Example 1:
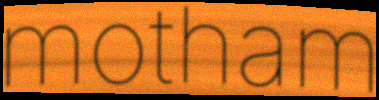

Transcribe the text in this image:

motham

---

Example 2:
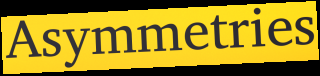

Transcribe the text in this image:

Asymmetries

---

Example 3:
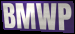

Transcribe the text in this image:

BMWP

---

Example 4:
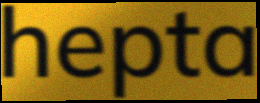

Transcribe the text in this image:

hepta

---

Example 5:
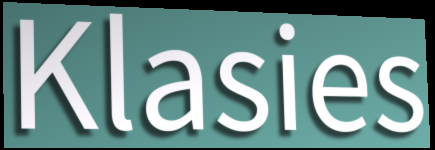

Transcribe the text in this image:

Klasies